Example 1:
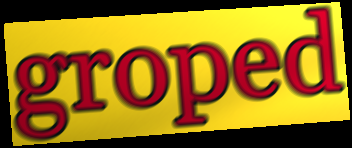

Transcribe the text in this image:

groped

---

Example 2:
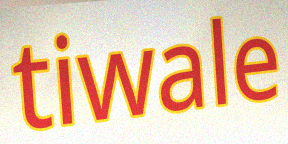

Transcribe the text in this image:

tiwale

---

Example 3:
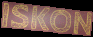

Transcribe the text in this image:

ISKON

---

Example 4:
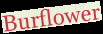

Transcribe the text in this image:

Burflower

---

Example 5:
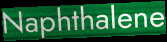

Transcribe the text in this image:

Naphthalene